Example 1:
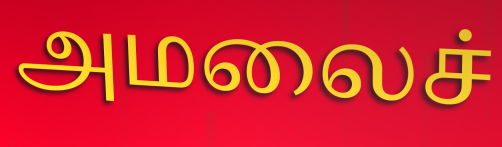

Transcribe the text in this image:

அமலைச்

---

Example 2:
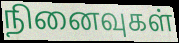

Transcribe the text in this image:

நினைவுகள்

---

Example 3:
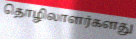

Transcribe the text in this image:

தொழிலாளர்களது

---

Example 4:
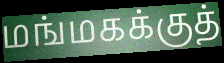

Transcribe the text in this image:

மங்மகக்குத்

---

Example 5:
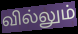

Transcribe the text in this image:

வில்லும்